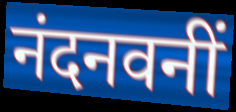
नंदनवनीं